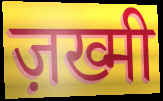
ज़ख्मी